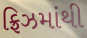
ફ્રિઝમાંથી